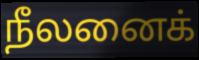
நீலனைக்